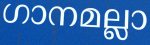
ഗാനമല്ലാ